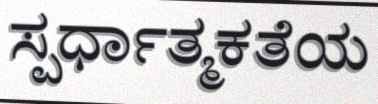
ಸ್ಪರ್ಧಾತ್ಮಕತೆಯ